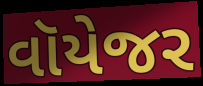
વૉયેજર